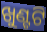
ଖୁଣ୍ଟଟି